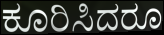
ಕೂರಿಸಿದರೂ